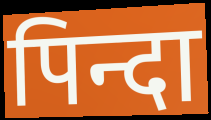
पिन्दा